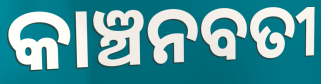
କାଞ୍ଚନବତୀ